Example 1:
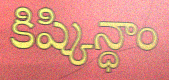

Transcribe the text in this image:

కిష్కిన్ధాం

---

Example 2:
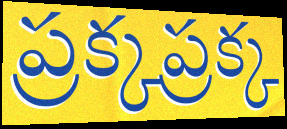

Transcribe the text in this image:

ప్రక్కప్రక్క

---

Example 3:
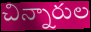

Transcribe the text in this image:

చిన్నారుల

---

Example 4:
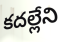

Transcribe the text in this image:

కదల్లేని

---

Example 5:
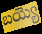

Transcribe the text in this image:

బయ్యె